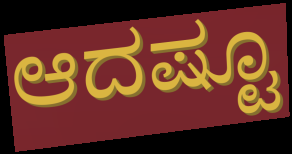
ಆದಷ್ಟೂ